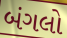
બંગલો